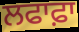
ਲਫਾਫ਼ਾ